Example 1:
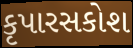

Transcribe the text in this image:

કૃપારસકોશ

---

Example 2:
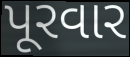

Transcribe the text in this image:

પૂરવાર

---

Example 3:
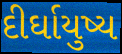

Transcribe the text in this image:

દીર્ઘાયુષ્ય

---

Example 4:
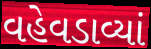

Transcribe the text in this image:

વહેવડાવ્યાં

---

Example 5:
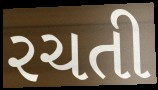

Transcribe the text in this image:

રચતી